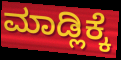
ಮಾಡ್ಲಿಕ್ಕೆ